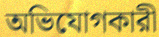
অভিযোগকারী